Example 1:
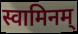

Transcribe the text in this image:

स्वामिनम्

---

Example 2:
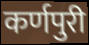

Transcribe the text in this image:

कर्णपुरी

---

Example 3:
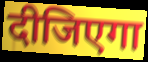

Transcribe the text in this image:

दीजिएगा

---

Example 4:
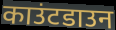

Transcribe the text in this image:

काउंटडाउन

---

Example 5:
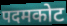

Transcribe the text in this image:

पदमकोट